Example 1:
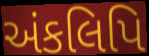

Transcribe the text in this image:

અંકલિપિ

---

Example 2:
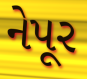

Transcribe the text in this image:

નેપૂર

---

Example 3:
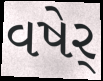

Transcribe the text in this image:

વષેર્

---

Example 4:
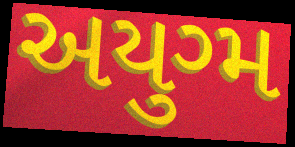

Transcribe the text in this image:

અયુગ્મ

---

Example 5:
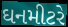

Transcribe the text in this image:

ઘનમીટરે